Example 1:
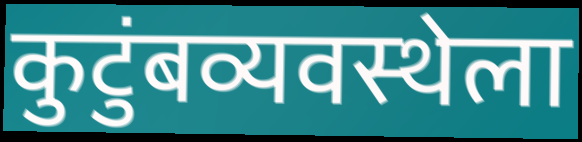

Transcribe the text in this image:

कुटुंबव्यवस्थेला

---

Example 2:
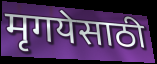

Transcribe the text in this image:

मृगयेसाठी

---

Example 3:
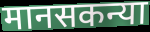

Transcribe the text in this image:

मानसकन्या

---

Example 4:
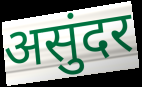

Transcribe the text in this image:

असुंदर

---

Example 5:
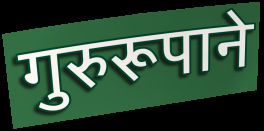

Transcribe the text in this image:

गुरुरूपाने